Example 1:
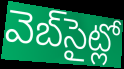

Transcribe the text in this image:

వెబ్‌సైట్లో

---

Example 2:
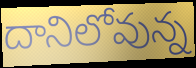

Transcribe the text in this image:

దానిలోవున్న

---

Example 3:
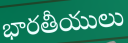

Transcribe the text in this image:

భారతీయులు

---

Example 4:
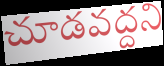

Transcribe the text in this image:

చూడవద్దని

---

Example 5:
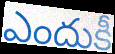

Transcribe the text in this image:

ఎందుకీ